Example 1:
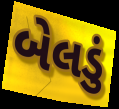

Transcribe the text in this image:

બેલડું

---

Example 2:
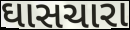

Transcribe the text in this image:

ઘાસચારા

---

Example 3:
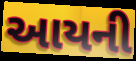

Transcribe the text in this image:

આયની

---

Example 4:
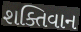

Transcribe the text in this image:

શક્તિવાન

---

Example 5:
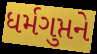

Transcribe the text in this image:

ધર્મગુપ્તને